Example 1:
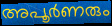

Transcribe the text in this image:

അപൂർണരും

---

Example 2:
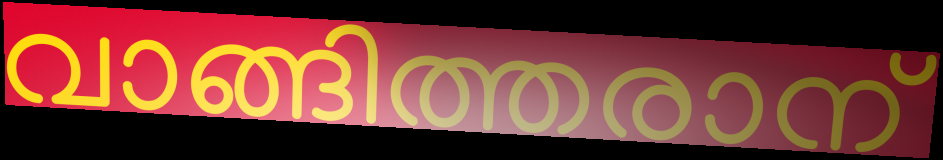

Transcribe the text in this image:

വാങ്ങിത്തരാന്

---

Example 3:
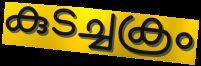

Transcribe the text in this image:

കുടച്ചക്രം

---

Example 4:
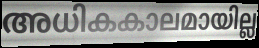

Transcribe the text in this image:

അധികകാലമായില്ല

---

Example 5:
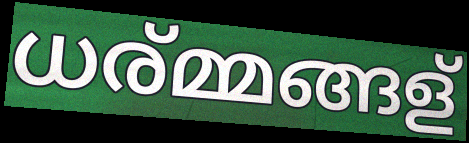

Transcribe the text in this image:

ധര്മ്മങ്ങള്